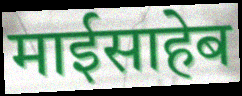
माईसाहेब